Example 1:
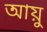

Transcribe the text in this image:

আয়ু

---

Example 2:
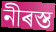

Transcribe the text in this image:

নীৰস্ত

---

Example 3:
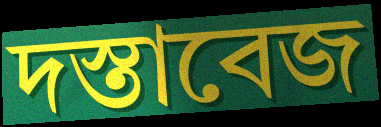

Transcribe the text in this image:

দস্তাবেজ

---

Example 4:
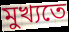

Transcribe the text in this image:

মুখ্যতে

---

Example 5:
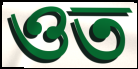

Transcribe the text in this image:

ওত